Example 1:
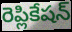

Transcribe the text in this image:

రెప్లికేషన్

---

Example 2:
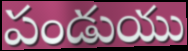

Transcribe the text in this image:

పండుయు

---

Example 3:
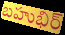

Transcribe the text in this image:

బహుభిర్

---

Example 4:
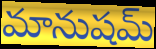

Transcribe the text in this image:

మానుషమ్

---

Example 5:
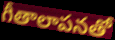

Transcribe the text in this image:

గీతాలాపనతో